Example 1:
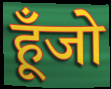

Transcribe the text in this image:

हूँजो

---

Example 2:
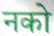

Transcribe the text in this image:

नको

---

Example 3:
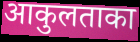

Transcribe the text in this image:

आकुलताका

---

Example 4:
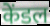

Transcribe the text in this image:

केंडल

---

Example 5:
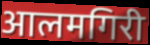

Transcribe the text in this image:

आलमगिरी